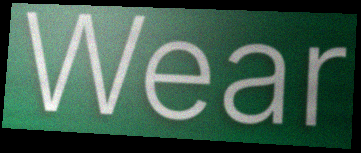
Wear